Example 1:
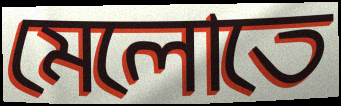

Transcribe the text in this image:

মেলোতে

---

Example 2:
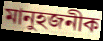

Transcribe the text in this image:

মানুহজনীক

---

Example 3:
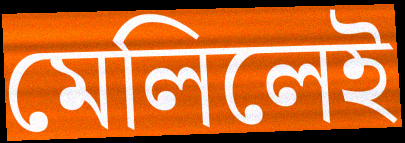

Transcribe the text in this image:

মেলিলেই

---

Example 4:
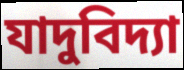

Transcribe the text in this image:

যাদুবিদ্যা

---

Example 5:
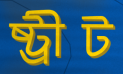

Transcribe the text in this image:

ষ্ট্ৰীট